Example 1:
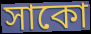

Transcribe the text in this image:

সাকো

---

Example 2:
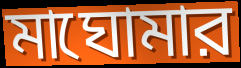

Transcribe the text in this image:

মাঘোমার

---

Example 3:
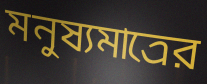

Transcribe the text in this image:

মনুষ্যমাত্রের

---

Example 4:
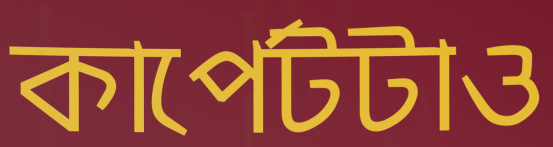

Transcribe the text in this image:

কার্পেটটাও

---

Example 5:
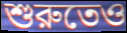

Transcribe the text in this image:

শুরুতেও